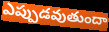
ఎప్పుడవుతుందా